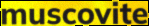
muscovite